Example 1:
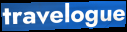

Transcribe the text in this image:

travelogue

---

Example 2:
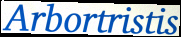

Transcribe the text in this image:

Arbortristis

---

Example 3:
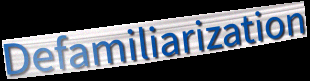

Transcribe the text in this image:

Defamiliarization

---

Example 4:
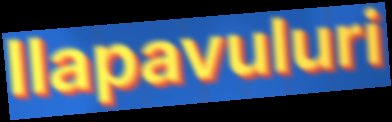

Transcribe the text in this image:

Ilapavuluri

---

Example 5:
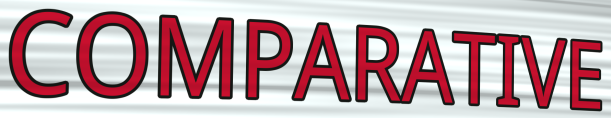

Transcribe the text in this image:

COMPARATIVE